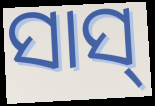
ସାସ୍